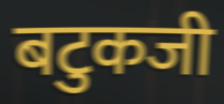
बटुकजी